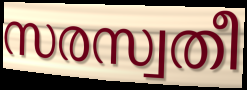
സരസ്വതീ